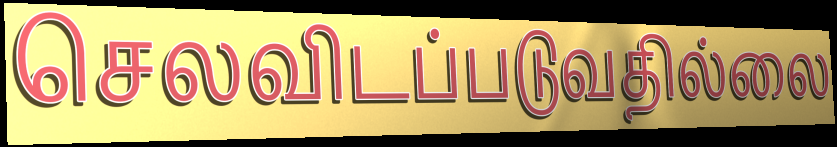
செலவிடப்படுவதில்லை